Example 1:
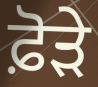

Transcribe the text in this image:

ਫ਼ੋੜੇ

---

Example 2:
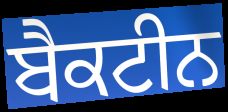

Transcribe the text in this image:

ਬੈਕਟੀਨ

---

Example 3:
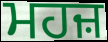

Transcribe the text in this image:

ਮਹਜ਼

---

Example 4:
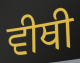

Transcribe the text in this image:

ਵੀਥੀ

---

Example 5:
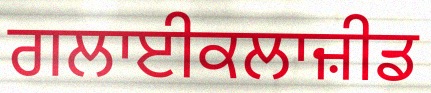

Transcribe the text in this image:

ਗਲਾਈਕਲਾਜ਼ੀਡ